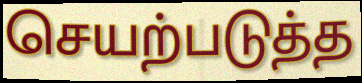
செயற்படுத்த